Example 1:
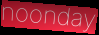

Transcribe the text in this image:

noonday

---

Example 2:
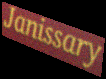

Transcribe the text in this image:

Janissary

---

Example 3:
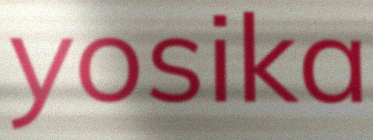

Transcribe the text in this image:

yosika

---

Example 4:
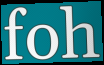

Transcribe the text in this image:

foh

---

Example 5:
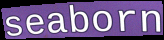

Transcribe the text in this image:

seaborn